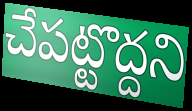
చేపట్టొద్దని